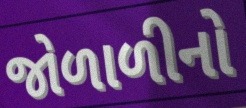
જોળાળીનો